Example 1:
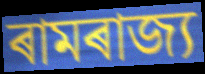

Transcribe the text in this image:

ৰামৰাজ্য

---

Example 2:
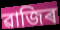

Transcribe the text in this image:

ৱাজিৰ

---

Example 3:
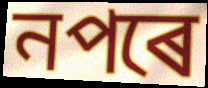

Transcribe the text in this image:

নপৰে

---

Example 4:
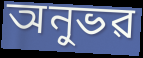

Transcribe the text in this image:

অনুভৱ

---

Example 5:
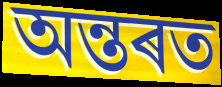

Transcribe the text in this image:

অন্তৰত